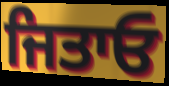
ਜਿਤਾਓ